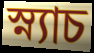
স্ন্যাচ